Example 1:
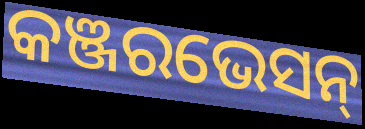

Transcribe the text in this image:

କଞ୍ଜରଭେସନ୍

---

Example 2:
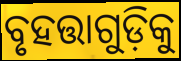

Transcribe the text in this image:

ବୃହତ୍ତାଗୁଡ଼ିକୁ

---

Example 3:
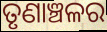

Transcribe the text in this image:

ତୃଣାଞ୍ଚଳର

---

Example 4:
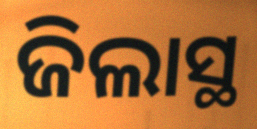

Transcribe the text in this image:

ଜିଲାସ୍ଥ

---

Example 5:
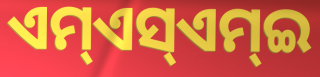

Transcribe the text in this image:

ଏମ୍ଏସ୍ଏମ୍ଇ